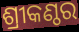
ଶ୍ରୀକଣ୍ଠର